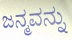
ಜನ್ಮವನ್ನು